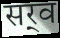
सर्व